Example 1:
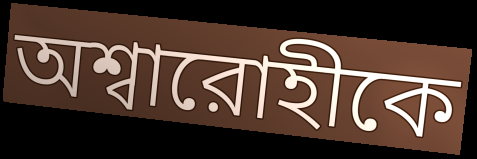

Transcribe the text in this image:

অশ্বারোহীকে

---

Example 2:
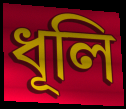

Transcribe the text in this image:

ধূলি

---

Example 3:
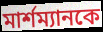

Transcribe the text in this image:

মার্শম্যানকে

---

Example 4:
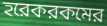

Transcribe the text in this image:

হরেকরকমের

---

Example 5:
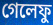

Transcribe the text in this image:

গেলেফু